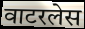
वाटरलेस